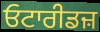
ਓਟਾਰੀਡਜ਼